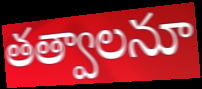
తత్వాలనూ